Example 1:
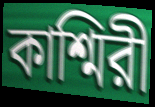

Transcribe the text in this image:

কাশ্মিরী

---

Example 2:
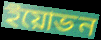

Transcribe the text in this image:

ইয়োভন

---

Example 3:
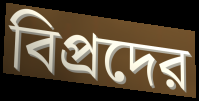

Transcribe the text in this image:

বিপ্রদের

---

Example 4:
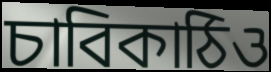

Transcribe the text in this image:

চাবিকাঠিও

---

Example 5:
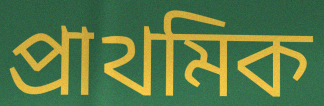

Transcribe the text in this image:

প্রাথমিক